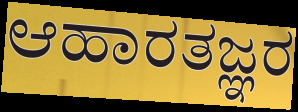
ಆಹಾರತಜ್ಞರ